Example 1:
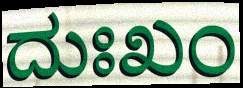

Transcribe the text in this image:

ದುಃಖಂ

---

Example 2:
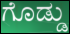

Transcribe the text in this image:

ಗೊಡ್ಡು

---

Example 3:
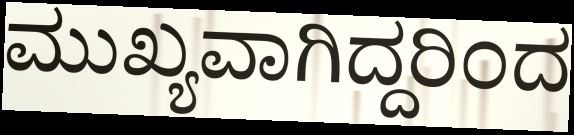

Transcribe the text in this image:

ಮುಖ್ಯವಾಗಿದ್ದರಿಂದ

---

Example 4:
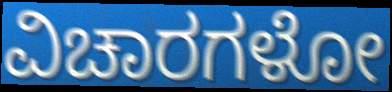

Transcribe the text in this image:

ವಿಚಾರಗಳೋ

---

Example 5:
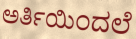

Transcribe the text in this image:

ಅರ್ತಿಯಿಂದಲೆ